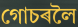
গোচৰলৈ